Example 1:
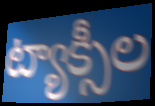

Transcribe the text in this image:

ట్యాక్సీల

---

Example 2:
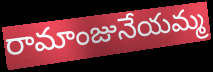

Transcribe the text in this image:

రామాంజునేయమ్మ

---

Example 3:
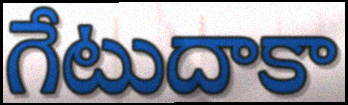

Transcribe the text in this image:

గేటుదాకా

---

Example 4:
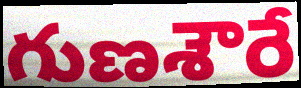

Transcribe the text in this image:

గుణశౌరే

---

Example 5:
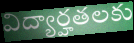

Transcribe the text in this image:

విద్యార్హతలకు